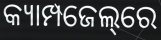
କ୍ୟାମ୍ପଜେଲ୍‌ରେ